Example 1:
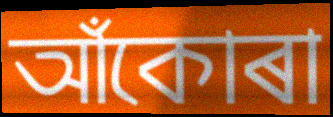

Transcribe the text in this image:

আঁকোৰা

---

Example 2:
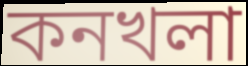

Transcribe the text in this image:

কনখলা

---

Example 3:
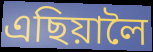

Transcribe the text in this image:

এছিয়ালৈ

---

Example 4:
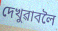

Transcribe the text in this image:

দেখুৱাবলৈ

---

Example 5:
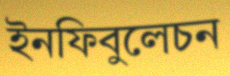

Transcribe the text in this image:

ইনফিবুলেচন